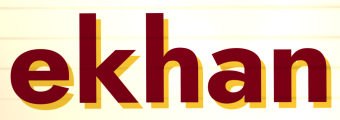
ekhan